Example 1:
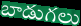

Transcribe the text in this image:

బాడుగలు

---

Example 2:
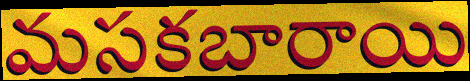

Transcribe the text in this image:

మసకబారాయి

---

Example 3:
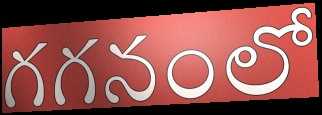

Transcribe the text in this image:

గగనంలో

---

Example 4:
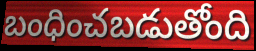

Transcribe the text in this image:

బంధించబడుతోంది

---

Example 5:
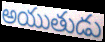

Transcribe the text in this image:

అయుతుడు